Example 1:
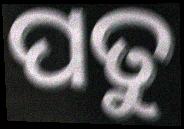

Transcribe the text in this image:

ପତୁ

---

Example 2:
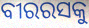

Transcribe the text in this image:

ବୀରରସକୁ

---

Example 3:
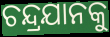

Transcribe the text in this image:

ଚନ୍ଦ୍ରଯାନକୁ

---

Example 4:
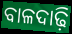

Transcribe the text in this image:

ବାଳଦାଢ଼ି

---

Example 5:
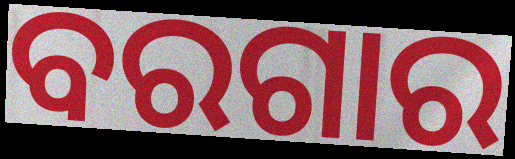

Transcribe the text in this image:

ବରଗାର